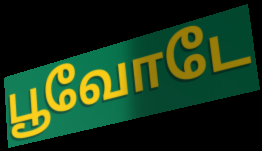
பூவோடே